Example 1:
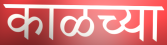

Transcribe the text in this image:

काळच्या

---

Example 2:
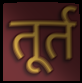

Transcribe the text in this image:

तूर्त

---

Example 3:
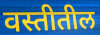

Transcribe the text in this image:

वस्तीतील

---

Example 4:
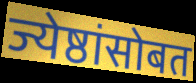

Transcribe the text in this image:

ज्येष्ठांसोबत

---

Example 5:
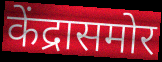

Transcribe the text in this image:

केंद्रासमोर